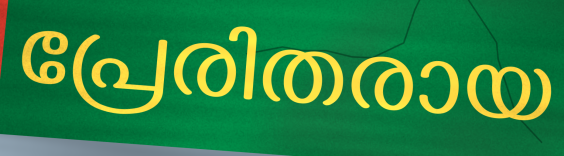
പ്രേരിതരായ